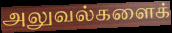
அலுவல்களைக்